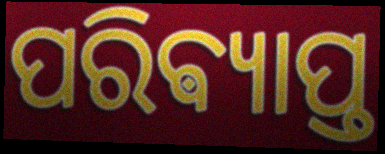
ପରିଵ୍ୟାପ୍ତ